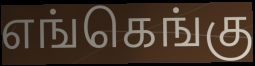
எங்கெங்கு